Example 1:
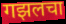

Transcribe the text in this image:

गझलचा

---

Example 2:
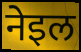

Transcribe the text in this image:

नेइल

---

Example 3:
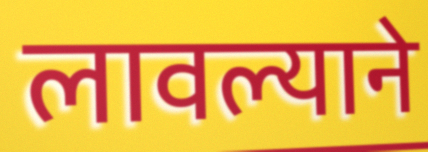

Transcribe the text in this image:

लावल्याने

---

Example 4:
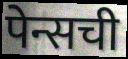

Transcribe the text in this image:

पेन्सची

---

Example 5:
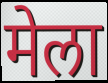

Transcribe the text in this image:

मेला